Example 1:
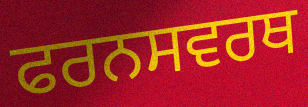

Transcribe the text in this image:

ਫਰਨਸਵਰਥ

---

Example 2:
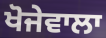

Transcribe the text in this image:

ਖੋਜੇਵਾਲਾ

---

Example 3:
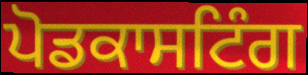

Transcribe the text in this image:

ਪੋਡਕਾਸਟਿੰਗ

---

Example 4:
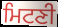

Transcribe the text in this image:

ਮਿਟਣੀ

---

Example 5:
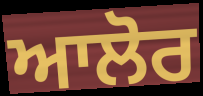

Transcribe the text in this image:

ਆਲੋਰ